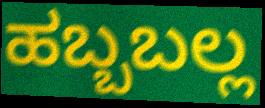
ಹಬ್ಬಬಲ್ಲ